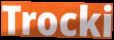
Trocki